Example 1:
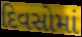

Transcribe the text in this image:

દિવસોમાં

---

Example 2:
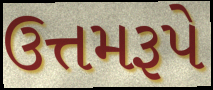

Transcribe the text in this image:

ઉત્તમરૂપે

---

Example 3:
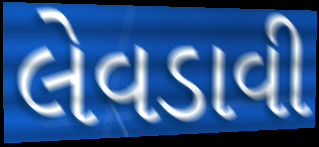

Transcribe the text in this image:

લેવડાવી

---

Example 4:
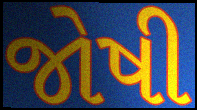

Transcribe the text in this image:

જોષી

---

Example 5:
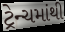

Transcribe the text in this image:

ટ્રેન્ચમાંથી